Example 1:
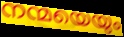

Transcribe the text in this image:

നന്മയെയും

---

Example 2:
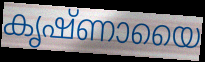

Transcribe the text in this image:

കൃഷ്ണായൈ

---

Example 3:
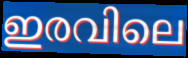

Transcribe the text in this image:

ഇരവിലെ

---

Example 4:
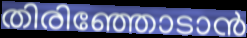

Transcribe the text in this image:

തിരിഞ്ഞോടാൻ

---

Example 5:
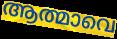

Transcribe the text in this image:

ആത്മാവെ